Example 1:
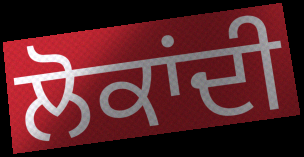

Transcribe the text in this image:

ਲੋਕਾਂਦੀ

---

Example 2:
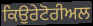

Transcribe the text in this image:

ਕਿਉਰੇਟੋਰੀਅਲ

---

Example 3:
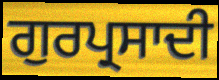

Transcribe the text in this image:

ਗੁਰਪ੍ਰਸਾਦੀ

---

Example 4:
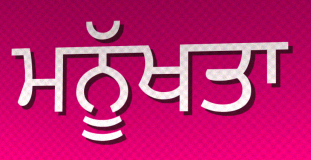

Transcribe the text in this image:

ਮਨੂੱਖਤਾ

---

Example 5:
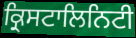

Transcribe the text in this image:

ਕ੍ਰਿਸਟਾਲਿਨਿਟੀ